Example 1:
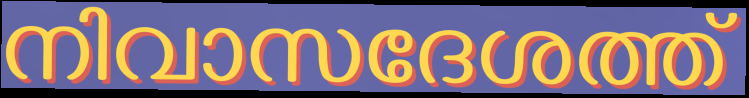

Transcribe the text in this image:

നിവാസദേശത്ത്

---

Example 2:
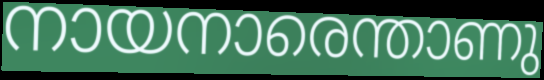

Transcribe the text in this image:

നായനാരെന്താണു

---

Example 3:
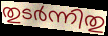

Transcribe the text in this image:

തുടർന്നിതു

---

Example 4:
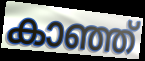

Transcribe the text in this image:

കാഞ്ഞ്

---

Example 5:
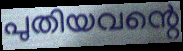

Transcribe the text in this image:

പുതിയവന്റെ